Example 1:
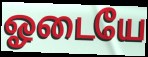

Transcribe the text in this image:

ஓடையே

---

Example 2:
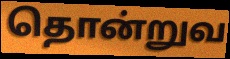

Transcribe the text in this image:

தொன்றுவ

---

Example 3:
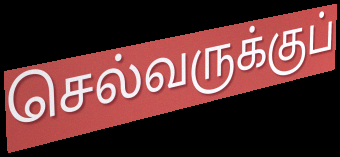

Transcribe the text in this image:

செல்வருக்குப்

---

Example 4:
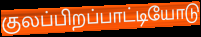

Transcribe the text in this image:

குலப்பிறப்பாட்டியோடு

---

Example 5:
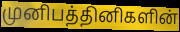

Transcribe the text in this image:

முனிபத்தினிகளின்